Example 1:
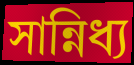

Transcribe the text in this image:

সান্নিধ্য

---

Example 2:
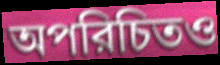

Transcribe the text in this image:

অপরিচিতও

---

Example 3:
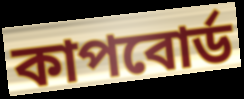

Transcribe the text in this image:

কাপবোর্ড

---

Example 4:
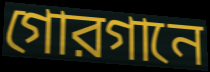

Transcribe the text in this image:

গোরগানে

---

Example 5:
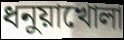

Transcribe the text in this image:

ধনুয়াখোলা